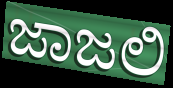
ಜಾಜಲಿ